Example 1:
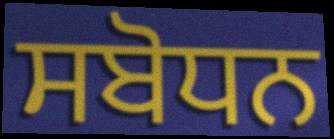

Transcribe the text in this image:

ਸਬੋਧਨ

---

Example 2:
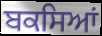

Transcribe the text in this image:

ਬਕਸਿਆਂ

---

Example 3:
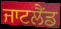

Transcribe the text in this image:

ਜਾਟਲੈਂਡ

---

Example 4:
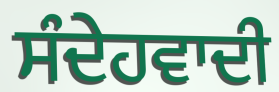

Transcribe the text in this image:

ਸੰਦੇਹਵਾਦੀ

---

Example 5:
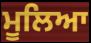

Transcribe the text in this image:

ਮੂਲਿਆ